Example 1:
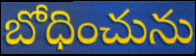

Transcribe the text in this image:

బోధించును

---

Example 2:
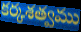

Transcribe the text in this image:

కర్కశత్వము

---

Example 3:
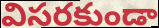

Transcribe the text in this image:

విసరకుండా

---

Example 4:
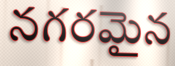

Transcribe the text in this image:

నగరమైన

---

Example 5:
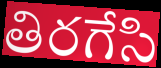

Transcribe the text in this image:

తిరగేసి